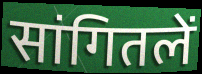
सांगितलें